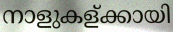
നാളുകള്ക്കായി